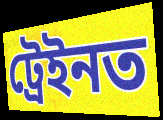
ট্ৰেইনত